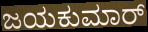
ಜಯಕುಮಾರ್